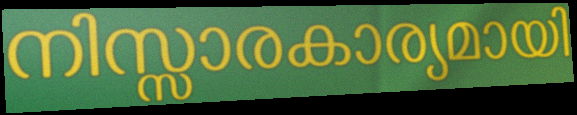
നിസ്സാരകാര്യമായി